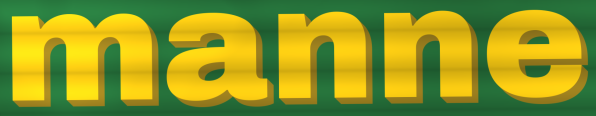
manne